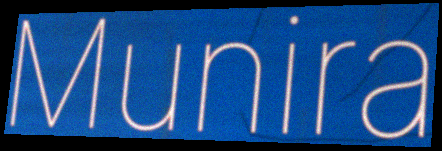
Munira